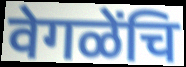
वेगळेंचि